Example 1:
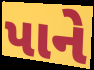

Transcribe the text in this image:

પાને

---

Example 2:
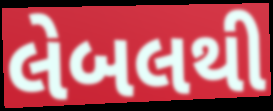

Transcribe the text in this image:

લેબલથી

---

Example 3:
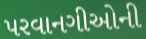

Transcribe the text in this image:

પરવાનગીઓની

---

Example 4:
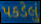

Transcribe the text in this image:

પકડેલું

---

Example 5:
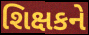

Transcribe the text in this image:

શિક્ષકને